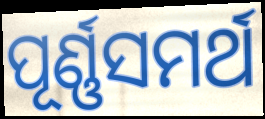
ପୂର୍ଣ୍ଣସମର୍ଥ